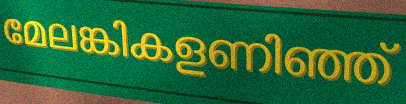
മേലങ്കികളണിഞ്ഞ്